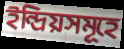
ইন্দ্রিয়সমূহে